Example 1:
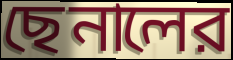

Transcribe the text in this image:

ছেনালের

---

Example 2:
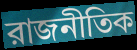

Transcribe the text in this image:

রাজনীতিক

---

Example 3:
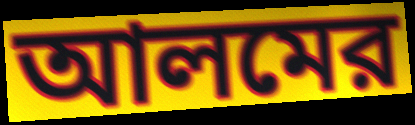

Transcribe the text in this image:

আলমের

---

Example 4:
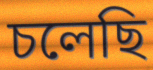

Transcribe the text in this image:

চলেছি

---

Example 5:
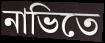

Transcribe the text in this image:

নাভিতে